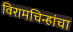
विरामचिन्हांचा